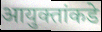
आयुक्तांकडे